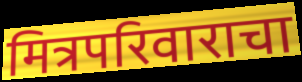
मित्रपरिवाराचा